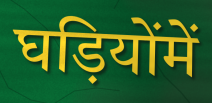
घड़ियोंमें